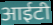
आईटी